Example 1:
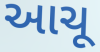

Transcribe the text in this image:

આચૂ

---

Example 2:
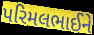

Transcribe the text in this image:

પરિમલભાઈને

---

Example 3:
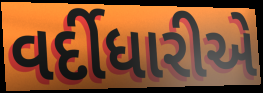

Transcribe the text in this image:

વર્દીધારીએ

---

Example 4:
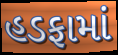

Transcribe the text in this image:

હડફામાં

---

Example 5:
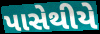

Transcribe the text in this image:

પાસેથીયે